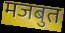
मजबुत